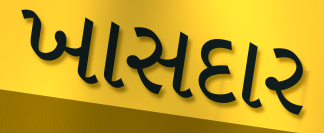
ખાસદાર